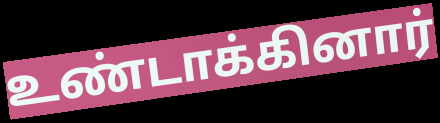
உண்டாக்கினார்